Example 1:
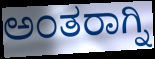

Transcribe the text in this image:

ಅಂತರಾಗ್ನಿ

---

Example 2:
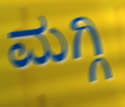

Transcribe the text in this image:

ಮಗ್ಗಿ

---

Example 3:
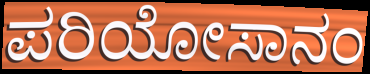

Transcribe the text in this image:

ಪರಿಯೋಸಾನಂ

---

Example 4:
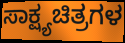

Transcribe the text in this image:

ಸಾಕ್ಷ್ಯಚಿತ್ರಗಳ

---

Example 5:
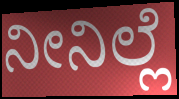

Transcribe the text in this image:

ನೀನಿಲ್ಲೆ